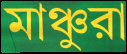
মাঞ্চুরা